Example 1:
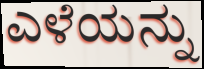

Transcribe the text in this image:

ಎಳೆಯನ್ನು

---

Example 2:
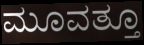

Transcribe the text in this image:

ಮೂವತ್ತೂ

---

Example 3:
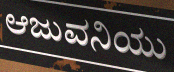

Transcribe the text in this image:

ಆಜುವನಿಯು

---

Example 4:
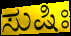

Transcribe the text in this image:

ಸುಷಿಃ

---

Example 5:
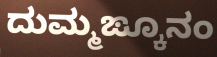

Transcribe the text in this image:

ದುಮ್ಮಙ್ಕೂನಂ